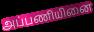
அப்பணியினை